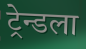
ट्रेन्डला